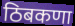
ठिबकणा